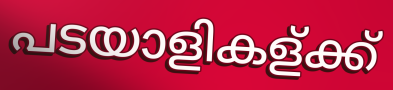
പടയാളികള്ക്ക്